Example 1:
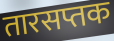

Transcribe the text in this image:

तारसप्तक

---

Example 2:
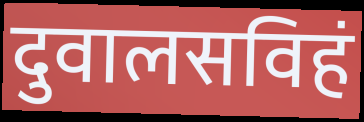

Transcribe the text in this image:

दुवालसविहं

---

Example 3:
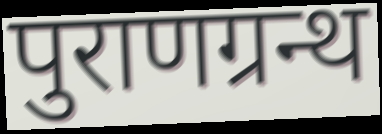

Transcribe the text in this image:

पुराणग्रन्थ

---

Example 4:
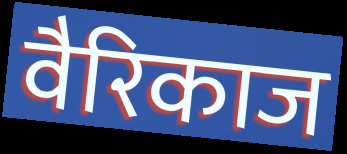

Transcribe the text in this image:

वैरिकाज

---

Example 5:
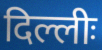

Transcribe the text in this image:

दिल्लीः